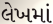
લેખમાં